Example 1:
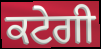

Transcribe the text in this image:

ਕਟੇਗੀ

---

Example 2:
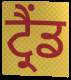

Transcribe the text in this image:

ਟ੍ਰੈਂਡ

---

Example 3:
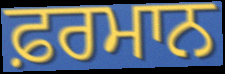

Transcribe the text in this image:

ਫ਼ਰਮਾਨ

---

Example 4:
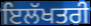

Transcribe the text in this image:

ਇਲੱਖਤਰੀ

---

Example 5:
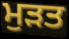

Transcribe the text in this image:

ਮੁੜਤ